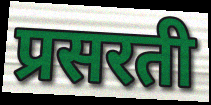
प्रसरती